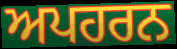
ਅਪਹਰਨ